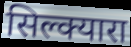
सिल्क्यारा